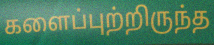
களைப்புற்றிருந்த